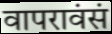
वापरावंसं